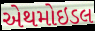
એથમોઇડલ